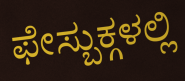
ಫೇಸ್ಬುಕ್ಗಳಲ್ಲಿ